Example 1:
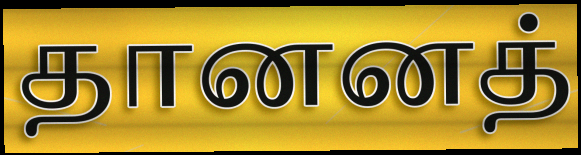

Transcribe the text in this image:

தானனத்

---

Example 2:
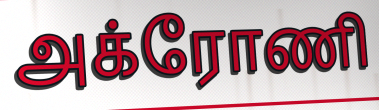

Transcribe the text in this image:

அக்ரோணி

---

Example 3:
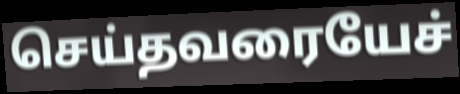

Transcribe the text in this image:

செய்தவரையேச்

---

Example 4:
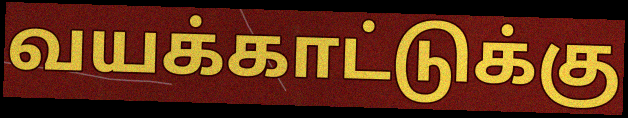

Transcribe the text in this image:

வயக்காட்டுக்கு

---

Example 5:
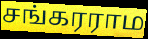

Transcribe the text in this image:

சங்கரராம